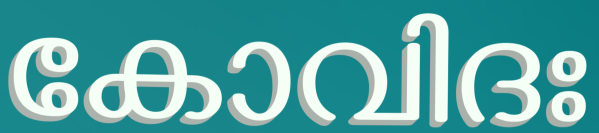
കോവിദഃ